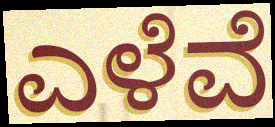
ಎಳೆವೆ